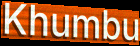
Khumbu